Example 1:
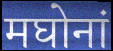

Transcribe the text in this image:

मघोनां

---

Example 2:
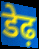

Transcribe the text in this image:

डेढ़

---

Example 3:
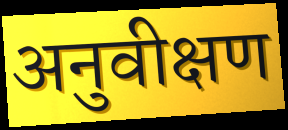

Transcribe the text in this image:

अनुवीक्षण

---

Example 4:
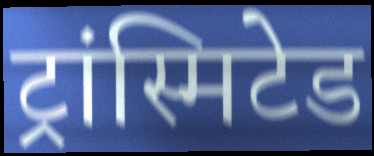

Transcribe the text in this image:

ट्रांस्मिटेड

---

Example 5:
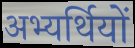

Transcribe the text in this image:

अभ्यर्थियों